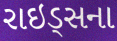
રાઇડ્સના